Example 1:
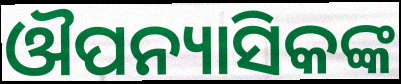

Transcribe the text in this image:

ଔପନ୍ୟାସିକଙ୍କ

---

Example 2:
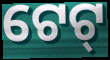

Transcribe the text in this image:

ଟେଟ୍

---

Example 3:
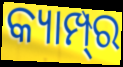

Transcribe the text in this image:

କ୍ୟାମ୍ପ୍‍ର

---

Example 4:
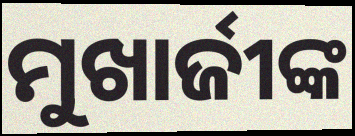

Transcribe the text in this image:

ମୁଖାର୍ଜୀଙ୍କ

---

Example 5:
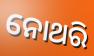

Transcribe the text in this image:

ନୋଥରି